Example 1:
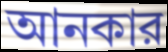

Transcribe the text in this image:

আনকার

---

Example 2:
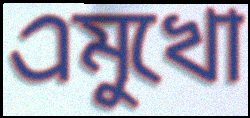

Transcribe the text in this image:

এমুখো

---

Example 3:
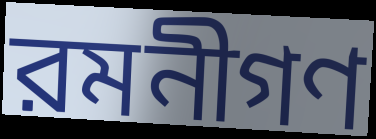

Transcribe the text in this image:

রমনীগণ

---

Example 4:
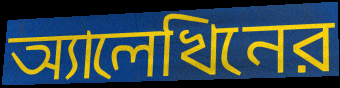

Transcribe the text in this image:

অ্যালেখিনের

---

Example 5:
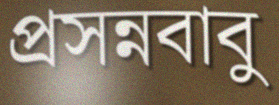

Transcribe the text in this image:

প্রসন্নবাবু